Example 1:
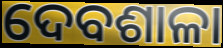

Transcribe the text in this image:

ଦେବଶାଳା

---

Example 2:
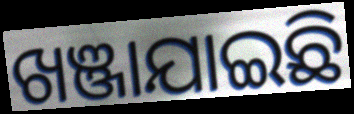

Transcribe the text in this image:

ଖଞ୍ଜାଯାଇଛି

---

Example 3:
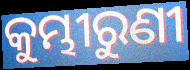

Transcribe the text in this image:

କୁମ୍ଭୀରୁଣୀ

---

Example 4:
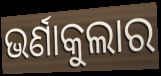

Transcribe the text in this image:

ଭର୍ଣାକୁଲାର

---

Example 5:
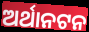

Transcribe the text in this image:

ଅର୍ଥାନଟନ